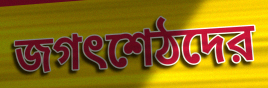
জগৎশেঠদের